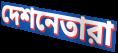
দেশনেতারা